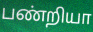
பண்றியா